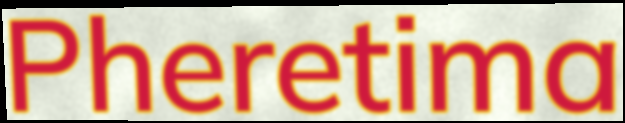
Pheretima